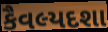
કૈવલ્યદશા